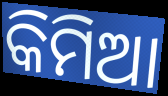
କିମିଆ